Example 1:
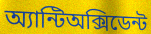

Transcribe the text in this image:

অ্যান্টিঅক্সিডেন্ট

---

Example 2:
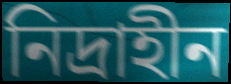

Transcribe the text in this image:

নিদ্রাহীন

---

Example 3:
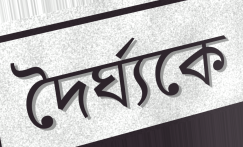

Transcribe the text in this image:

দৈর্ঘ্যকে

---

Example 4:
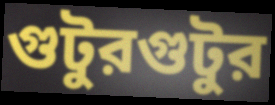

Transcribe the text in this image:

গুটুরগুটুর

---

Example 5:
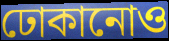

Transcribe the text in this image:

ঢোকানোও